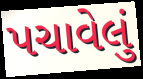
પચાવેલું